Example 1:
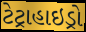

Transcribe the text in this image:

ટેટ્રાહાઇડ્રો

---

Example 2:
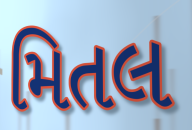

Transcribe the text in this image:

મિતલ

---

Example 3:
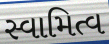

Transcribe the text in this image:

સ્વામિત્વ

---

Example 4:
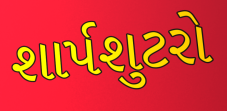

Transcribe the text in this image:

શાર્પશુટરો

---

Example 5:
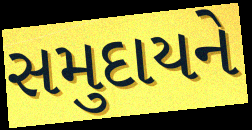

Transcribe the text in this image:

સમુદાયને